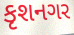
કૃશનગર